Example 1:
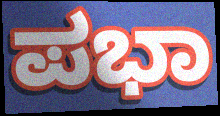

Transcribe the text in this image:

ಪಭಾ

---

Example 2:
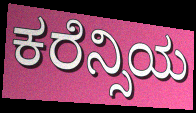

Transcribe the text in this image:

ಕರೆನ್ಸಿಯ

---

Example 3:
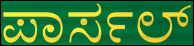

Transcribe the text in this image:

ಪಾರ್ಸಲ್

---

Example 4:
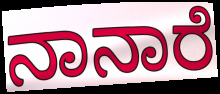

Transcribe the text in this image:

ನಾನಾರೆ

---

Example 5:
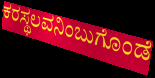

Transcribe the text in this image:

ಕರಸ್ಥಲವನಿಂಬುಗೊಂಡೆ